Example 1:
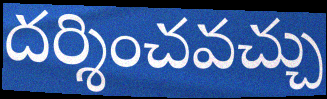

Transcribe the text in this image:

దర్శించవచ్చు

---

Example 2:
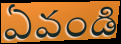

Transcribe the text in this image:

ఏవండి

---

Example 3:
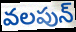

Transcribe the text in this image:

వలపున్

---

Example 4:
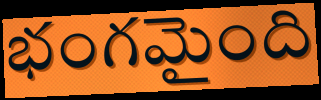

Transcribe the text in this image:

భంగమైంది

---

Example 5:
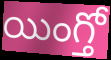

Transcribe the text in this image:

యింగ్తో